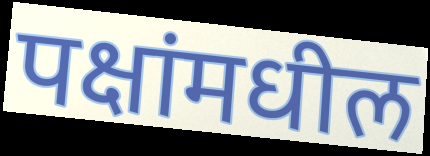
पक्षांमधील